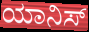
ಯಾನಿಸ್